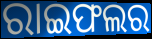
ରାଇଫଲର